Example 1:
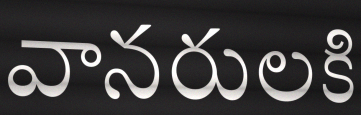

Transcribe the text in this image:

వానరులకి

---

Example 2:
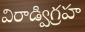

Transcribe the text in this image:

విరాడ్విగ్రహ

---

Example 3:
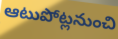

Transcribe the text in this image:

ఆటుపోట్లనుంచి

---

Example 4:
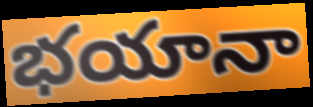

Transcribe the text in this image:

భయానా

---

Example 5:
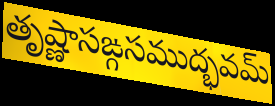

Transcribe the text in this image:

తృష్ణాసఙ్గసముద్భవమ్